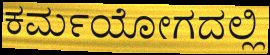
ಕರ್ಮಯೋಗದಲ್ಲಿ